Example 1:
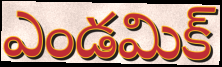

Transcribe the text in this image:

ఎండమిక్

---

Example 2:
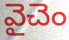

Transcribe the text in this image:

వైచెం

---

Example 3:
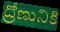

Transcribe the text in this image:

ద్రోణునికి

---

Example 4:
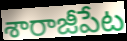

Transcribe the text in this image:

శారాజీపేట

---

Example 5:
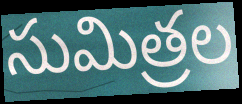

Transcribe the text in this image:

సుమిత్రల